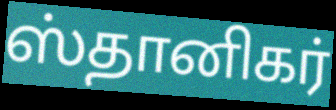
ஸ்தானிகர்